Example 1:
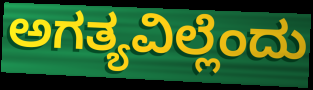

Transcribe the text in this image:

ಅಗತ್ಯವಿಲ್ಲೆಂದು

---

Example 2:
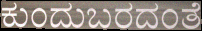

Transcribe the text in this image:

ಕುಂದುಬರದಂತೆ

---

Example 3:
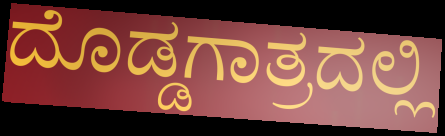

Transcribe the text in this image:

ದೊಡ್ಡಗಾತ್ರದಲ್ಲಿ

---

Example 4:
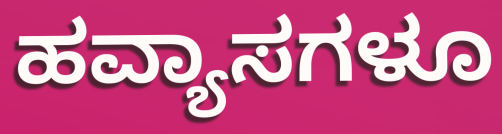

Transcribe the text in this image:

ಹವ್ಯಾಸಗಳೂ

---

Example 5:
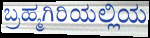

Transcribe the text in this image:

ಬ್ರಹ್ಮಗಿರಿಯಲ್ಲಿಯ